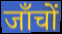
जाँचों